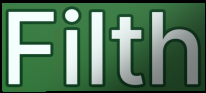
Filth